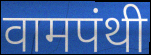
वामपंथी